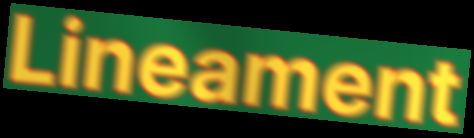
Lineament